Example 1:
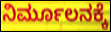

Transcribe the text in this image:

ನಿರ್ಮೂಲನಕ್ಕೆ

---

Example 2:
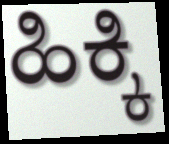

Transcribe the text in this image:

ಹಿಕ್ಕಿ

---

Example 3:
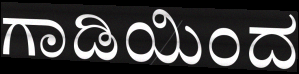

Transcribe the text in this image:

ಗಾಡಿಯಿಂದ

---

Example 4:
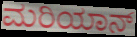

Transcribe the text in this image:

ಮರಿಯಾನ್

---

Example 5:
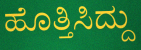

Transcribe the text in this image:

ಹೊತ್ತಿಸಿದ್ದು